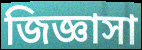
জিজ্ঞাসা